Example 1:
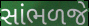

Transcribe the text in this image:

સાંભળજે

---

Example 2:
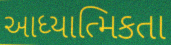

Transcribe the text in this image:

આધ્યાત્મિકતા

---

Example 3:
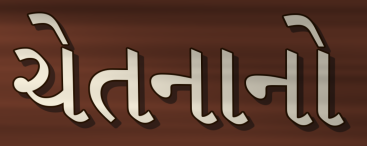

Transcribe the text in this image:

ચેતનાનો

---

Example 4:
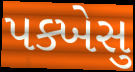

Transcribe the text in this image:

પક્ખેસુ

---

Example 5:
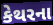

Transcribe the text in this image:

કેથરના